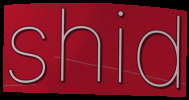
shid